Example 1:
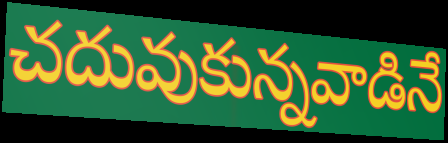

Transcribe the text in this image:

చదువుకున్నవాడినే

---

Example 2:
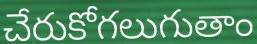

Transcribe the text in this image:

చేరుకోగలుగుతాం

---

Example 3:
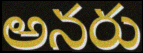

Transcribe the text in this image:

అనరు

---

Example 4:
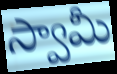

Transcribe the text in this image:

స్వామీ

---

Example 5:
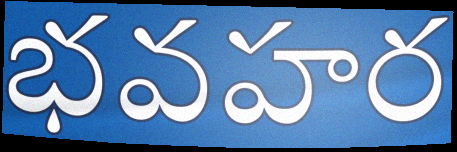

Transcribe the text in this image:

భవహర